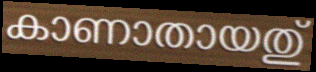
കാണാതായതു്